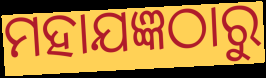
ମହାଯଜ୍ଞଠାରୁ